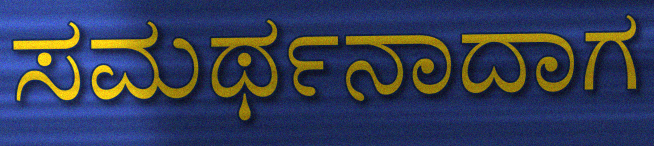
ಸಮರ್ಥನಾದಾಗ